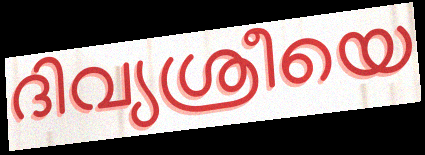
ദിവ്യശ്രീയെ